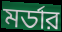
মর্ডার